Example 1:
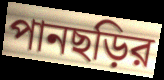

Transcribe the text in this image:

পানছড়ির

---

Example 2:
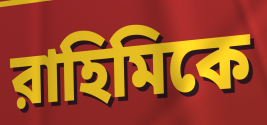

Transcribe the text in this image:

রাহিমিকে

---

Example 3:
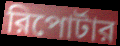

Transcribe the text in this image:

রিপোর্টার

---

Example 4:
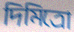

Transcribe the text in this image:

দিমিত্রো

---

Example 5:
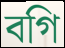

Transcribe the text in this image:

বগি